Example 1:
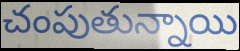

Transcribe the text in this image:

చంపుతున్నాయి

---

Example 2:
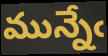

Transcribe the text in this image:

మున్నేఁ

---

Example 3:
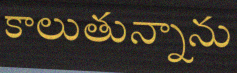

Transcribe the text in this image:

కాలుతున్నాను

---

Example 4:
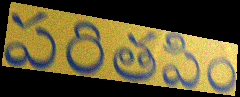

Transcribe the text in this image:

పరితపిం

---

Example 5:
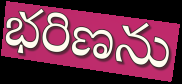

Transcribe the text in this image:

భరిణను